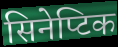
सिनेप्टिक